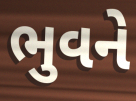
ભુવને